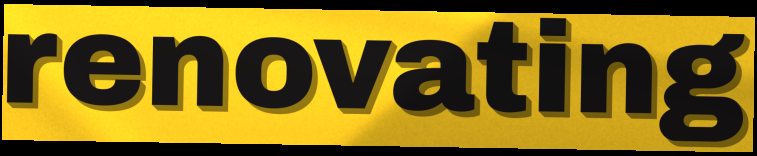
renovating